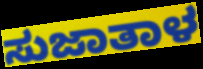
ಸುಜಾತಾಳ